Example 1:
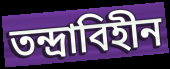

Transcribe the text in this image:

তন্দ্রাবিহীন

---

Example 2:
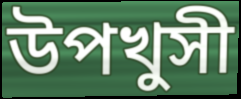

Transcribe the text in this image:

উপখুসী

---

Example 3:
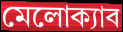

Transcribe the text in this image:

মেলোক্যাব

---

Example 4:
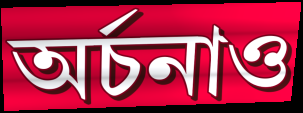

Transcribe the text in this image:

অর্চনাও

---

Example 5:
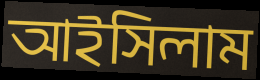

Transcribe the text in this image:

আইসিলাম